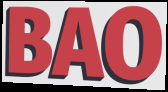
BAO